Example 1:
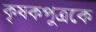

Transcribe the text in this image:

কৃষকপুত্রকে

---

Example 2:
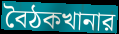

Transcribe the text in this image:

বৈঠকখানার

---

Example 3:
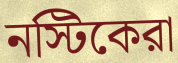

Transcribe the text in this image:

নস্টিকেরা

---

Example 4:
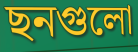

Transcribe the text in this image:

ছনগুলো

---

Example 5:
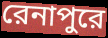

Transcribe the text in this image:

রেনাপুরে